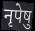
नृपेषु